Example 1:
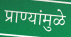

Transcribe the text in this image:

प्राण्यांमुळे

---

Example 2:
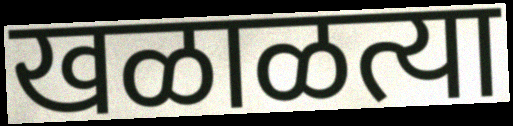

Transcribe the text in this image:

खळाळत्या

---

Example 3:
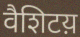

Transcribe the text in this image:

वैशिटय़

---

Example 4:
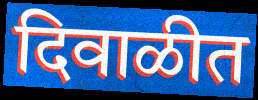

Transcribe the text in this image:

दिवाळीत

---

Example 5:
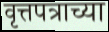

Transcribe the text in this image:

वृत्तपत्राच्या